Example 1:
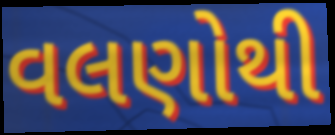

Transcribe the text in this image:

વલણોથી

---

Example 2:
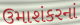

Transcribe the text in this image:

ઉમાશંકરનાં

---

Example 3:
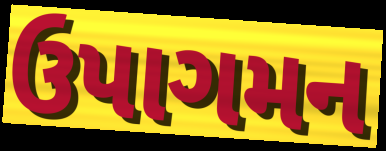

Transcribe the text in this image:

ઉપાગમન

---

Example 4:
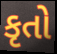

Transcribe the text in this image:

કૃતો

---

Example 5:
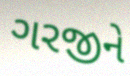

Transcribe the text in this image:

ગરજીને